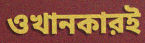
ওখানকারই